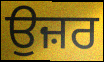
ਉਜ਼ਰ